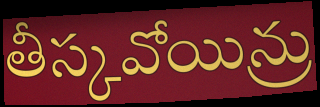
తీస్కవోయిన్రు